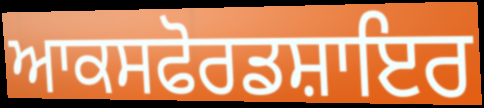
ਆਕਸਫੋਰਡਸ਼ਾਇਰ